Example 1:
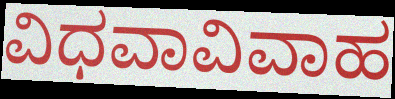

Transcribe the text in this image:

ವಿಧವಾವಿವಾಹ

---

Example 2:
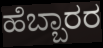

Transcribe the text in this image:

ಹೆಬ್ಬಾರರ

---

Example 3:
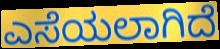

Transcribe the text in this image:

ಎಸೆಯಲಾಗಿದೆ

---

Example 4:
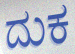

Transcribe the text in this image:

ದುಕ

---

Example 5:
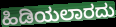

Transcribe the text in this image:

ಹಿಡಿಯಲಾರದು